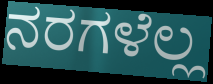
ನರಗಳೆಲ್ಲ